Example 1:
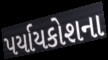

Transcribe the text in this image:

પર્યાયકોશના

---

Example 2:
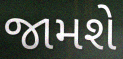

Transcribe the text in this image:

જામશે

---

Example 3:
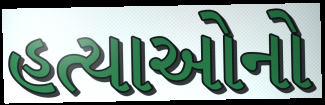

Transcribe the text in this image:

હત્યાઓનો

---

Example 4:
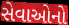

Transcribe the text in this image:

સેવાઓનો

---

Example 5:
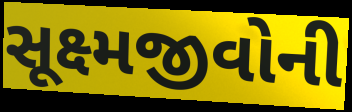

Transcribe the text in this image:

સૂક્ષ્મજીવોની